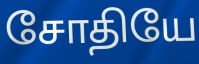
சோதியே